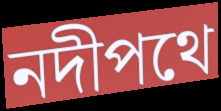
নদীপথে